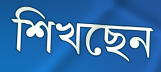
শিখছেন